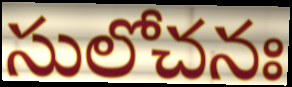
సులోచనః